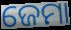
ଜେମା